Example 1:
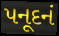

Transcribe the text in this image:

પનૂદનં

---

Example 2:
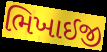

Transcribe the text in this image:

ભિખાઈજી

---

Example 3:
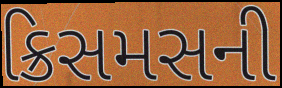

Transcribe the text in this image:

ક્રિસમસની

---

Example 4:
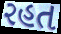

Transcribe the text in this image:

રહત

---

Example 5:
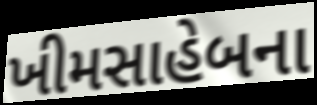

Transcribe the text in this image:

ખીમસાહેબના